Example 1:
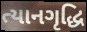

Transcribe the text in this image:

ત્યાનગૃદ્ધિ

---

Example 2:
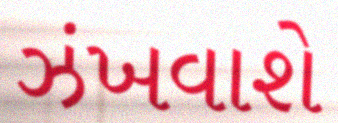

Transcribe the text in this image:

ઝંખવાશે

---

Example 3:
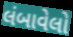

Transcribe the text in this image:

લંબાવેલો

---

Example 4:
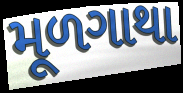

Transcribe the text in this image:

મૂળગાથા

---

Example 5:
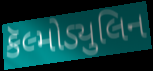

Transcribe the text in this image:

કૅલ્મોડ્યુલિન